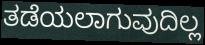
ತಡೆಯಲಾಗುವುದಿಲ್ಲ